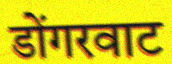
डोंगरवाट